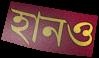
হানও